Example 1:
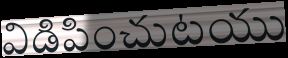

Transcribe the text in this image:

విడిపించుటయు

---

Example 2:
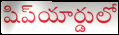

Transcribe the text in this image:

షిప్‌యార్డులో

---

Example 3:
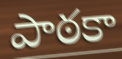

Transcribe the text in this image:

పాఠకా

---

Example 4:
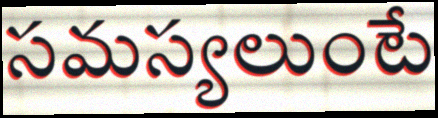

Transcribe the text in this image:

సమస్యలుంటే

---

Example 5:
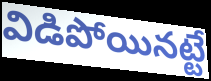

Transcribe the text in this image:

విడిపోయినట్టే